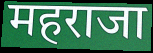
महराजा